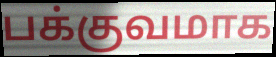
பக்குவமாக